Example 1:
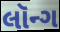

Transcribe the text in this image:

લૉન્ગ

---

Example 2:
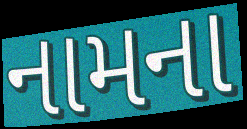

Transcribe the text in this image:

નામના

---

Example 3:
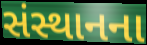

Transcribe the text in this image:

સંસ્થાનના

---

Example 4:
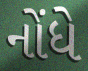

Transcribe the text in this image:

નોંધે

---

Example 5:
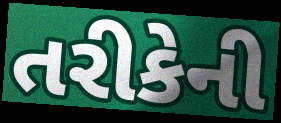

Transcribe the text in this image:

તરીકેની